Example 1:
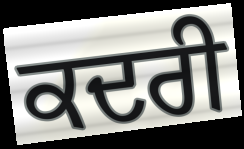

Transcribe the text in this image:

ਕਦਰੀ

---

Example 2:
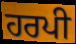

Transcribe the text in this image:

ਹਰਪੀ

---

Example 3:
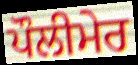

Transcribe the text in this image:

ਪੌਲੀਮੇਰ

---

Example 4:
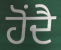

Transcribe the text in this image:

ਹੋਂਦੈ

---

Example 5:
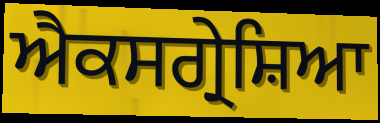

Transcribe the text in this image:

ਐਕਸਗ੍ਰੇਸ਼ਿਆ